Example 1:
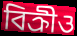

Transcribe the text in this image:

বিক্ৰীও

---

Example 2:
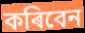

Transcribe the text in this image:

কৰিবেন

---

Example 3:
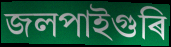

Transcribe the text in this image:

জলপাইগুৰি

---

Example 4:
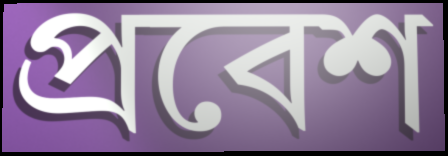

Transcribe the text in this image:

প্ৰবেশ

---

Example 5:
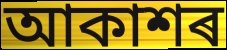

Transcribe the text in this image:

আকাশৰ